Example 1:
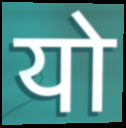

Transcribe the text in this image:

यो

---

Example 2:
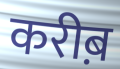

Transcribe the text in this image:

करीब़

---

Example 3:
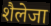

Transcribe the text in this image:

शैलेजा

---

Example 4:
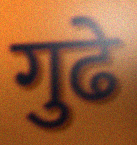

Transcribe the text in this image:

गुढे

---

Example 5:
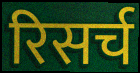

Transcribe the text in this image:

रिसर्च